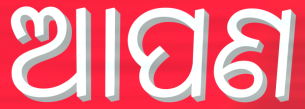
ଆପଣ